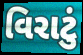
વિરાટું